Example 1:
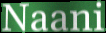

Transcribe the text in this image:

Naani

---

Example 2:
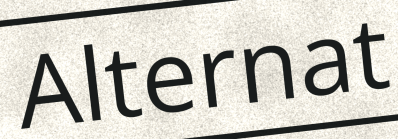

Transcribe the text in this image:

Alternat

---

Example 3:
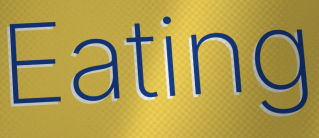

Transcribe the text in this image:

Eating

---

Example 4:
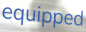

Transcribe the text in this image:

equipped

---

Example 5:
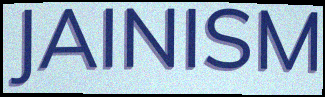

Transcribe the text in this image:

JAINISM